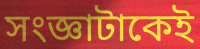
সংজ্ঞাটাকেই